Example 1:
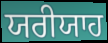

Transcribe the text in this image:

ਯਰੀਯਾਹ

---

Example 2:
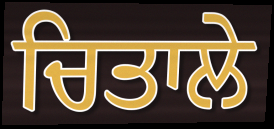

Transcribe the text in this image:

ਚਿਤਾਲੇ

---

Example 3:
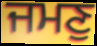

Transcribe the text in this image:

ਜਮਣੁ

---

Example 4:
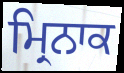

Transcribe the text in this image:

ਮ੍ਰਿਨਾਕ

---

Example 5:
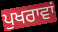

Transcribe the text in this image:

ਪੁਖਰਾਵਾਂ